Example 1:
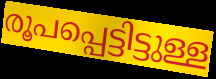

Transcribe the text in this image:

രൂപപ്പെട്ടിട്ടുള്ള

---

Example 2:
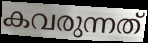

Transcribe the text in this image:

കവരുന്നത്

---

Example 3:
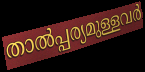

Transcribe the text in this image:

താൽപ്പര്യമുള്ളവർ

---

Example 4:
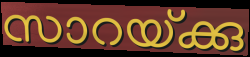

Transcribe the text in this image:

സാറയ്‌ക്കു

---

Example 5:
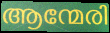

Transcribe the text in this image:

ആന്മേരി